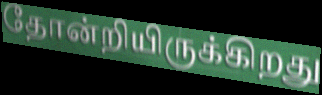
தோன்றியிருக்கிறது